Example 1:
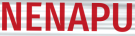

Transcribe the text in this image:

NENAPU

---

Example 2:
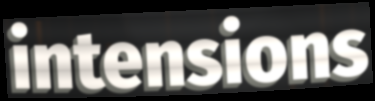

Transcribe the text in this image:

intensions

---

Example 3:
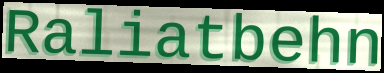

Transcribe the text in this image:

Raliatbehn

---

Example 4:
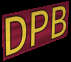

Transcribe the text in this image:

DPB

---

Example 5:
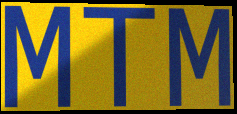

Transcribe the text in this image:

MTM